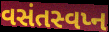
વસંતસ્વપ્ન